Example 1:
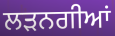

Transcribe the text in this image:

ਲੜਨਗੀਆਂ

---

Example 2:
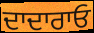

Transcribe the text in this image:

ਦਾਦਾਰਾਓ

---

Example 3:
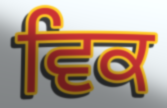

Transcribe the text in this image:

ਵਿਕ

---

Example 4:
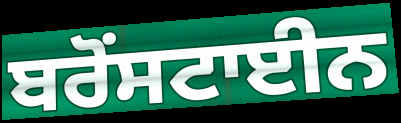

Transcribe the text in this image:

ਬਰੋਂਸਟਾਈਨ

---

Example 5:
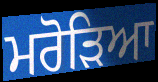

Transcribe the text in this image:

ਮਰੋੜਿਆ